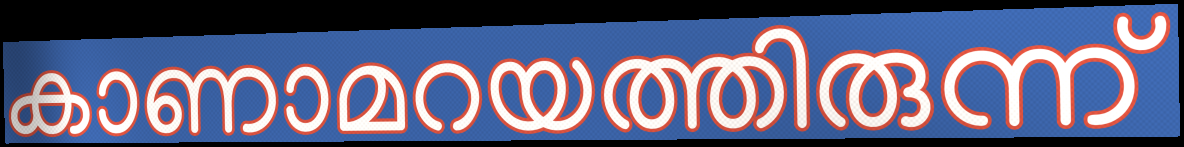
കാണാമറയത്തിരുന്ന്